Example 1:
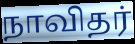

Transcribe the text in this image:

நாவிதர்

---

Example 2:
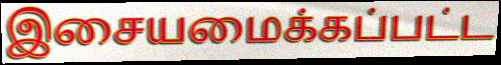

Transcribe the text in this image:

இசையமைக்கப்பட்ட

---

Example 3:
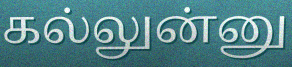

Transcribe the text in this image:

கல்லுன்னு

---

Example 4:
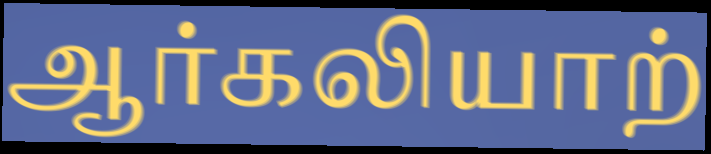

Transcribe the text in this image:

ஆர்கலியாற்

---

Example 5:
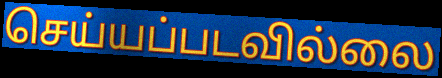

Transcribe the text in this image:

செய்யப்படவில்லை